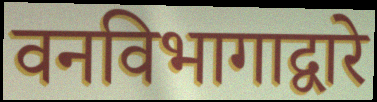
वनविभागाद्वारे